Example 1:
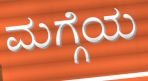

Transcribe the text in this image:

ಮಗ್ಗೆಯ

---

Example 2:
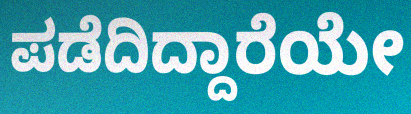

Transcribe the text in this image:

ಪಡೆದಿದ್ದಾರೆಯೇ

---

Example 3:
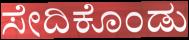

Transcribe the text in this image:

ಸೇದಿಕೊಂಡು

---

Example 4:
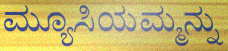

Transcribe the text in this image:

ಮ್ಯೂಸಿಯಮ್ಮನ್ನು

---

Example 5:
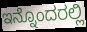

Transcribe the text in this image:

ಇನ್ನೊಂದರಲ್ಲಿ